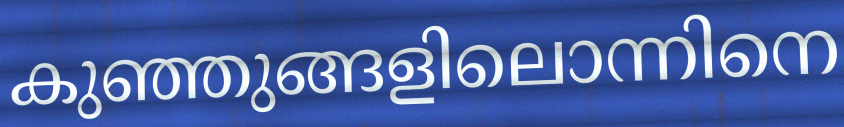
കുഞ്ഞുങ്ങളിലൊന്നിനെ